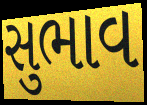
સુભાવ